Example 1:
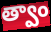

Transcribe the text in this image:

త్వాం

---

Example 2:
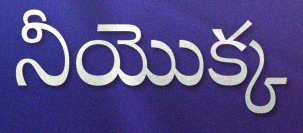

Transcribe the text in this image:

నీయొక్క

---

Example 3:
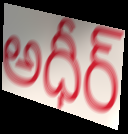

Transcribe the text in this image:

అధీర్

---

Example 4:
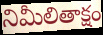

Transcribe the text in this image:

నిమీలితాక్షం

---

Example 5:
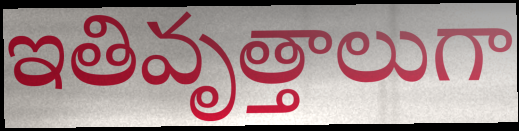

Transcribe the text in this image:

ఇతివృత్తాలుగా